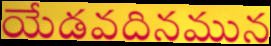
యేడవదినమున